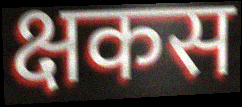
क्षकस